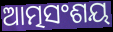
ଆତ୍ମସଂଶୟ